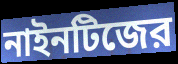
নাইনটিজের